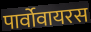
पार्वोवायरस